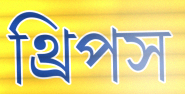
থ্রিপস